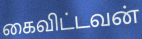
கைவிட்டவன்